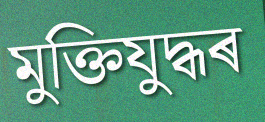
মুক্তিযুদ্ধৰ